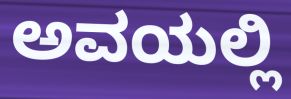
ಅವಯಲ್ಲಿ